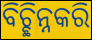
ବିଚ୍ଛିନ୍ନକରି